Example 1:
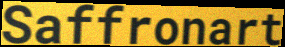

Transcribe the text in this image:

Saffronart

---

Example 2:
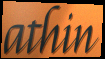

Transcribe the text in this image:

athin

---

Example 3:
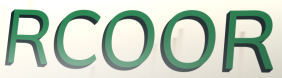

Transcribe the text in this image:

RCOOR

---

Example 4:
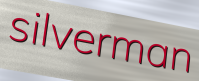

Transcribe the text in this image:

silverman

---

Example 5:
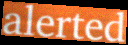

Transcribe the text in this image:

alerted